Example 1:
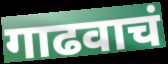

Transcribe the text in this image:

गाढवाचं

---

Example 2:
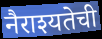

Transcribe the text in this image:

नैराश्यतेची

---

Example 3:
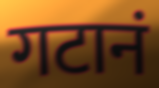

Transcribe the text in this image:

गटानं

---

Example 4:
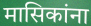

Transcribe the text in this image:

मासिकांना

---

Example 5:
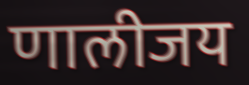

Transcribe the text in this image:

णालीजय